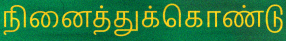
நினைத்துக்கொண்டு